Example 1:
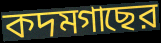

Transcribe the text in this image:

কদমগাছের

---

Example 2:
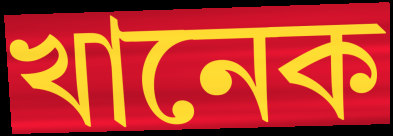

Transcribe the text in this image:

খানেক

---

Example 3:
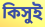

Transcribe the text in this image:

কিসুই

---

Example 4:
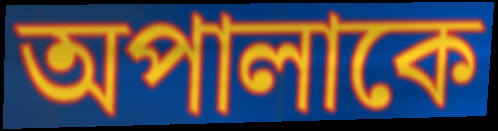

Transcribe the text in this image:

অপালাকে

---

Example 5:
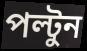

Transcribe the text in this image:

পল্টুন